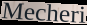
Mecheri